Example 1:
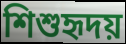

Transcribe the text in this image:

শিশুহৃদয়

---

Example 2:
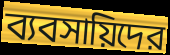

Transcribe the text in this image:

ব্যবসায়িদের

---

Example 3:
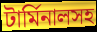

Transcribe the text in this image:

টার্মিনালসহ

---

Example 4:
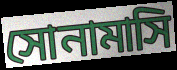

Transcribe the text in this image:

সোনামাসি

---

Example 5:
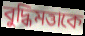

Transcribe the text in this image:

বুদ্ধিমত্তাকে